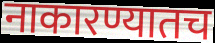
नाकारण्यातच